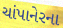
ચાંપાનેરના